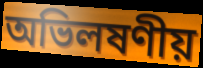
অভিলষণীয়